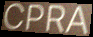
CPRA